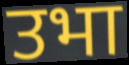
उभा